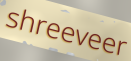
shreeveer